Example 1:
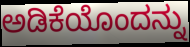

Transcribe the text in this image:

ಅಡಿಕೆಯೊಂದನ್ನು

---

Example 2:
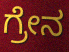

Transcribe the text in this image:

ಗ್ರೇನ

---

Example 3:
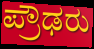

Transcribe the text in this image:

ಪ್ರೌಢರು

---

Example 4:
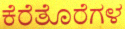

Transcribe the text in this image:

ಕೆರೆತೊರೆಗಳ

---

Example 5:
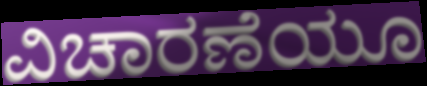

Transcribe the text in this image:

ವಿಚಾರಣೆಯೂ